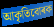
আকৃতিবোৰক